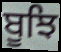
ਬੂਝਿ